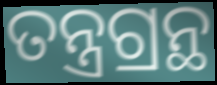
ତନ୍ତ୍ରଗ୍ରନ୍ଥ